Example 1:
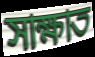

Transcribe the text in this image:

সাক্ষাত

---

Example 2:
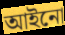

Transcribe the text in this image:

আইনো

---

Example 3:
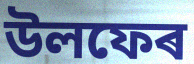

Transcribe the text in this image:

উলফেৰ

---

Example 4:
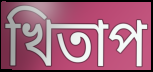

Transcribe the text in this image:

খিতাপ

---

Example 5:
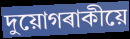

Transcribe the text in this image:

দুয়োগৰাকীয়ে